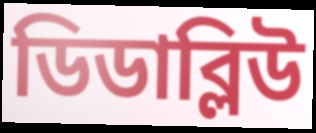
ডিডাব্লিউ